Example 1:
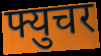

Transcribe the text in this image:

फ्युचर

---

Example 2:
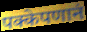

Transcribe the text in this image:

पक्केपणानं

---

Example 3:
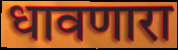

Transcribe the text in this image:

धावणारा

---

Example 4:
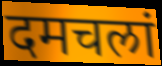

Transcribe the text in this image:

दमचलां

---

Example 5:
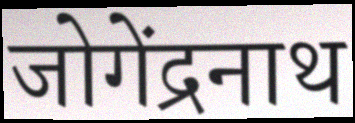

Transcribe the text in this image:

जोगेंद्रनाथ